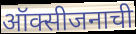
ऑक्सीजनाची